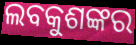
ଲବକୁଶଙ୍କର